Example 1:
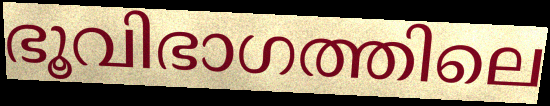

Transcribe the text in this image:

ഭൂവിഭാഗത്തിലെ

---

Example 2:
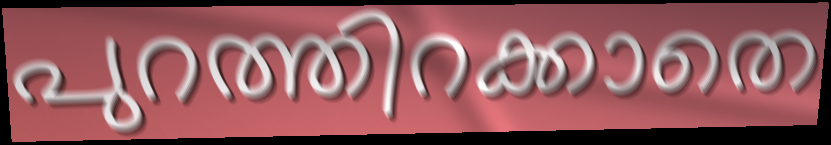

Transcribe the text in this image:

പുറത്തിറക്കാതെ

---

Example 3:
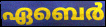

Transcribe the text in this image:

ഏബെർ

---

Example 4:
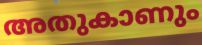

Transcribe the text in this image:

അതുകാണും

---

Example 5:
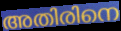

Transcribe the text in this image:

അതിരിനെ